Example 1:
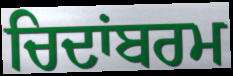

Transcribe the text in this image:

ਚਿਦਾਂਬਰਮ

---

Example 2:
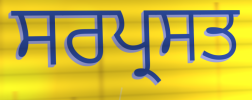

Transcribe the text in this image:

ਸਰਪ੍ਰਸਤ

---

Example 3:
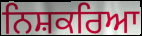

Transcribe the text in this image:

ਨਿਸ਼ਕਰਿਆ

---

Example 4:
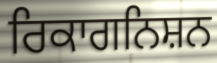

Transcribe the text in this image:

ਰਿਕਾਗਨਿਸ਼ਨ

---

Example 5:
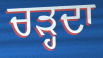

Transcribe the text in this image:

ਚੜ੍ਹਦਾ